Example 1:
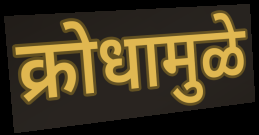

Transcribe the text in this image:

क्रोधामुळे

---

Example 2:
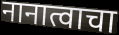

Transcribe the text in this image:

नानात्वाचा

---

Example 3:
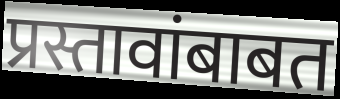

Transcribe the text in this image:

प्रस्तावांबाबत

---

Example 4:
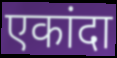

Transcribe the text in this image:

एकांदा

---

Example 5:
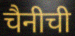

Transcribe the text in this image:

चैनीची